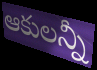
ఆకులన్నీ